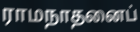
ராமநாதனைப்